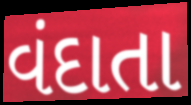
વંદાતા